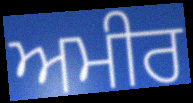
ਅਮੀਰ